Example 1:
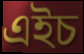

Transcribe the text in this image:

এইচ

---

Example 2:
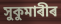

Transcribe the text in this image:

সুকুমাৰীৰ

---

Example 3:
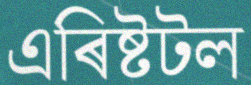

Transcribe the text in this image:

এৰিষ্টটল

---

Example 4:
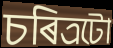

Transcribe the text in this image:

চৰিত্ৰটো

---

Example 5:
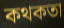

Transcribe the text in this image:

কথকতা